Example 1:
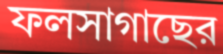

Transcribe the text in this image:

ফলসাগাছের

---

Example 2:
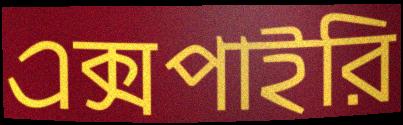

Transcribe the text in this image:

এক্সপাইরি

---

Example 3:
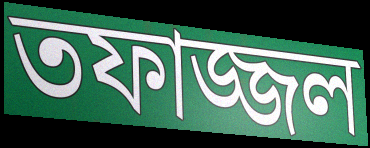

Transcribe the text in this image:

তফাজ্জল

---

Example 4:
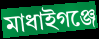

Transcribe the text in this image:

মাধাইগঞ্জে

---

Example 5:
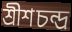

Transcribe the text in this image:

শ্রীশচন্দ্র